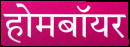
होमबॉयर